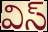
విస్